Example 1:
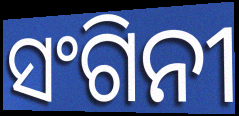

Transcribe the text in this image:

ସଂଗିନୀ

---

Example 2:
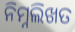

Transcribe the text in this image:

ନିମ୍ନଲିଖତ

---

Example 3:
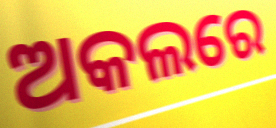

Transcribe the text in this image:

ଅକଲରେ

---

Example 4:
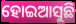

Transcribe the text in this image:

ହୋଇଆସୁଛି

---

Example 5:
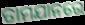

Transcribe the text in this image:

ତାମଯାନରେ